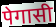
पेगासी